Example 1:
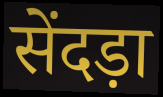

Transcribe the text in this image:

सेंदड़ा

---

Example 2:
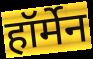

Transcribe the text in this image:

हॉर्मेन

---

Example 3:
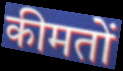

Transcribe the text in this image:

कीमतों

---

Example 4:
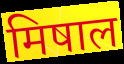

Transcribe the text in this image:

मिषाल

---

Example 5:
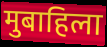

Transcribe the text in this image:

मुबाहिला